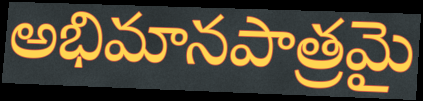
అభిమానపాత్రమై